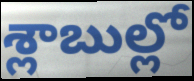
శ్లాబుల్లో